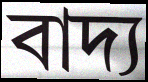
বাদ্য